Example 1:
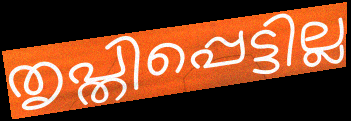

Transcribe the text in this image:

തൃപ്തിപ്പെട്ടില്ല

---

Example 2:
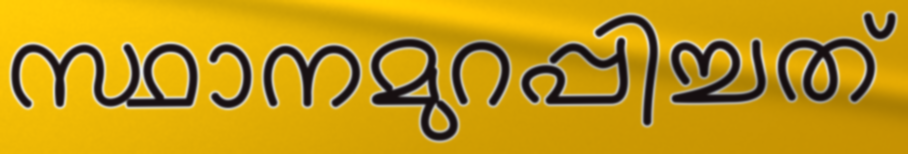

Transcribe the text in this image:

സ്ഥാനമുറപ്പിച്ചത്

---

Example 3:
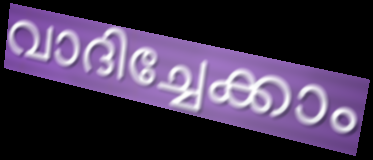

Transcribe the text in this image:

വാദിച്ചേക്കാം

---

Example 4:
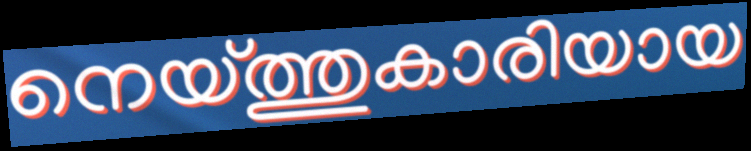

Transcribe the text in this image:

നെയ്ത്തുകാരിയായ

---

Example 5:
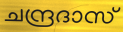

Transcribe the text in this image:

ചന്ദ്രദാസ്